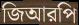
জিআরপি